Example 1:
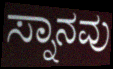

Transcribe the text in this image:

ಸ್ನಾನವು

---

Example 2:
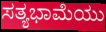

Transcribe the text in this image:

ಸತ್ಯಭಾಮೆಯು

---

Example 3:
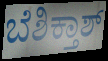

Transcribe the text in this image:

ಬೆಶಿಕ್ತಾಶ್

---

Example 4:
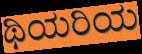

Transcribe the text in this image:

ಥಿಯರಿಯ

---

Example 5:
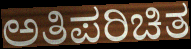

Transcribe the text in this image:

ಅತಿಪರಿಚಿತ